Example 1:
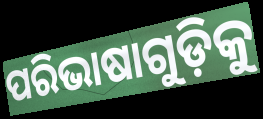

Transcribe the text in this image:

ପରିଭାଷାଗୁଡ଼ିକୁ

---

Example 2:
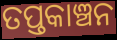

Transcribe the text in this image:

ତପ୍ତକାଞ୍ଚନ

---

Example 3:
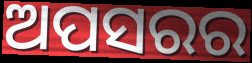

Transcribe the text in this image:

ଅପସରର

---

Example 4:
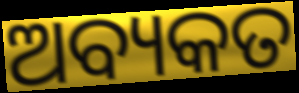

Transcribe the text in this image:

ଅବ୍ୟକତ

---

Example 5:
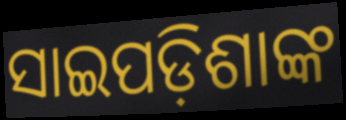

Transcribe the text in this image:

ସାଇପଡ଼ିଶାଙ୍କ